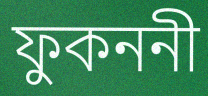
ফুকননী